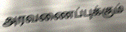
அரவணைப்புக்கும்